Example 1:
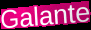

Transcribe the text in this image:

Galante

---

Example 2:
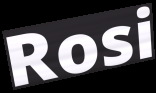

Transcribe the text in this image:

Rosi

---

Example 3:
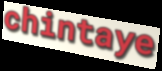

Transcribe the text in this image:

chintaye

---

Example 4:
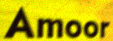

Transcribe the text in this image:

Amoor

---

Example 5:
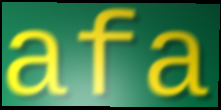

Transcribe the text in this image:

afa